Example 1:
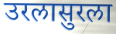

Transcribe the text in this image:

उरलासुरला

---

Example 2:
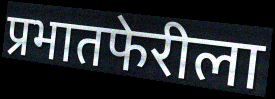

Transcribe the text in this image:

प्रभातफेरीला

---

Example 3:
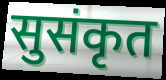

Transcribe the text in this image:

सुसंकृत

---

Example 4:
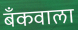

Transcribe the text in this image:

बँकवाला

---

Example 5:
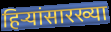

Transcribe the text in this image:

हिऱ्यांसारख्या